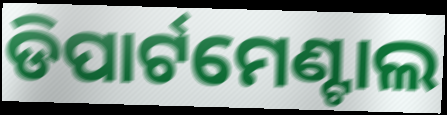
ଡିପାର୍ଟମେଣ୍ଟାଲ